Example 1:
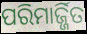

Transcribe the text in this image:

ପରିମାର୍ଜ୍ଜିତ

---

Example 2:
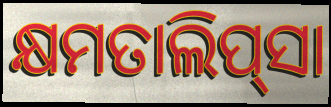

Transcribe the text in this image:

କ୍ଷମତାଲିପ୍‍ସା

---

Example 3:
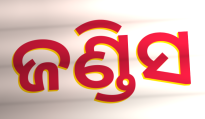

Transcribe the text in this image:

ଜଣ୍ଡିସ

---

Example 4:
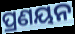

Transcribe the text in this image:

ପ୍ରଣୟନ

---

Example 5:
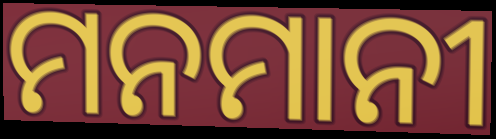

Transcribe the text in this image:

ମନମାନୀ